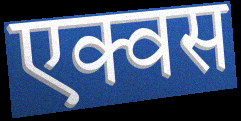
एक्वस